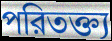
পরিতক্ত্য